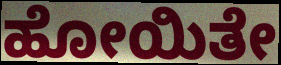
ಹೋಯಿತೇ